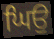
ਘਿਉ